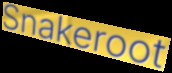
Snakeroot